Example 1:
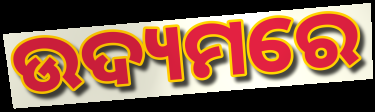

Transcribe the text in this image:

ଉଦ୍ୟମରେ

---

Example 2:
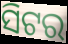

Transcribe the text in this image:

ସିଟର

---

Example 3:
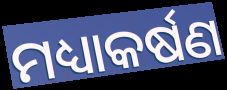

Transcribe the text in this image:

ମଧ୍ୟାକର୍ଷଣ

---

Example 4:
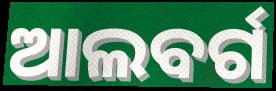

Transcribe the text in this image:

ଆଲବର୍ଗ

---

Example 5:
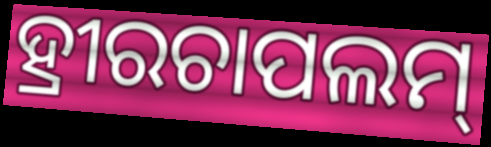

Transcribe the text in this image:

ହ୍ରୀରଚାପଲମ୍